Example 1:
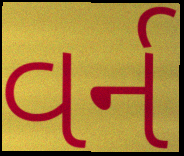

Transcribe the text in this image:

વર્ન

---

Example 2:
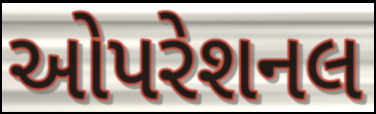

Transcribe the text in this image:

ઓપરેશનલ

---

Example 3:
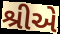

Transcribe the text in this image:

શ્રીએ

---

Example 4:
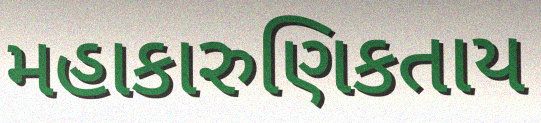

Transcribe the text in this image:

મહાકારુણિકતાય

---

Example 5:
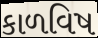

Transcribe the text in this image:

કાળવિષ